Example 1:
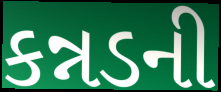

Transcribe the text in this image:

કન્નડની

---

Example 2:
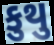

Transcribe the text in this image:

કુથુ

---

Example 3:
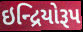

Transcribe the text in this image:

ઇન્દ્રિયોરૂપ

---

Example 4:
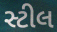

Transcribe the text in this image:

સ્ટીલ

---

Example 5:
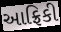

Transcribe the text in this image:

આફ્રિકી